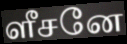
ளீசனே